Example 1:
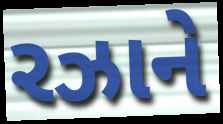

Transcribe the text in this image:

રઝાને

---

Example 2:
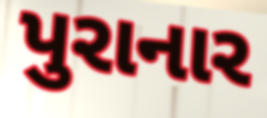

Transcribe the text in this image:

પુરાનાર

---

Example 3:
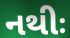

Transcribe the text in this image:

નથીઃ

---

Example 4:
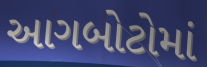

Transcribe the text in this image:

આગબોટોમાં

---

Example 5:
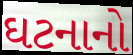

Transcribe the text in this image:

ઘટનાનો